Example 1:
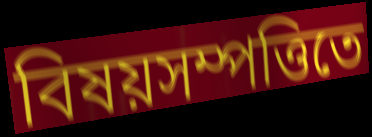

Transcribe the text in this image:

বিষয়সম্পত্তিতে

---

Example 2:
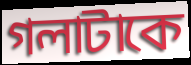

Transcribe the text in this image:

গলাটাকে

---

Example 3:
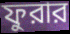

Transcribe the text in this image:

ফুরার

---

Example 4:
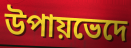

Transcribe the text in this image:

উপায়ভেদে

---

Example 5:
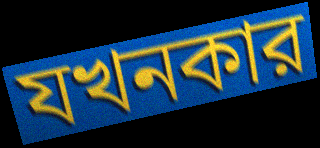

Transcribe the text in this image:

যখনকার